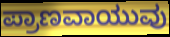
ಪ್ರಾಣವಾಯುವು